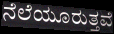
ನೆಲೆಯೂರುತ್ತವೆ